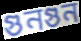
গুনগুন